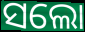
ସଲୋ